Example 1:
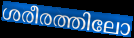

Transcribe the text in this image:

ശരീരത്തിലോ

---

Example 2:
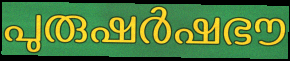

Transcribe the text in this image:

പുരുഷർഷഭൗ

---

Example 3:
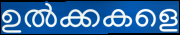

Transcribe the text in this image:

ഉൽക്കകളെ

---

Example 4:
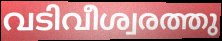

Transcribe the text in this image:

വടിവീശ്വരത്തു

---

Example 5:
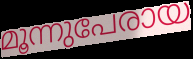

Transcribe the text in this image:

മൂന്നുപേരായ